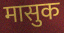
मासुक